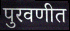
पुरवणीत